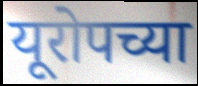
यूरोपच्या